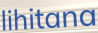
lihitana